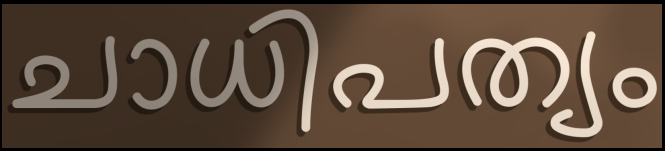
ചാധിപത്യം